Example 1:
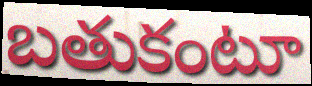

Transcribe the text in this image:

బతుకంటూ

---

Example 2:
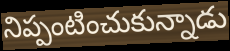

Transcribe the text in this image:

నిప్పంటించుకున్నాడు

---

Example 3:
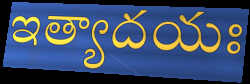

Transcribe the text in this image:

ఇత్యాదయః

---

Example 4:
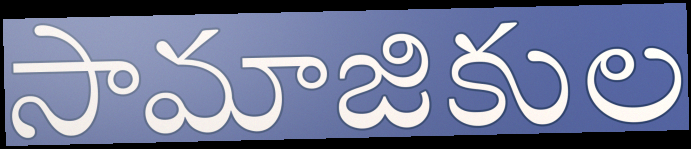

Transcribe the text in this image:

సామాజికుల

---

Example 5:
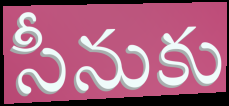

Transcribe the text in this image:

సీనుకు